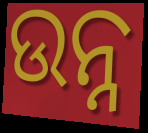
ଉନ୍ନ